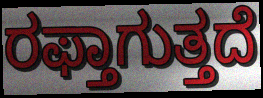
ರಫ್ತಾಗುತ್ತದೆ